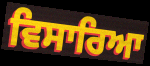
ਵਿਸਾਰਿਆ